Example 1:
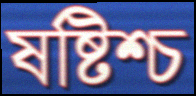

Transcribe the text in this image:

ষষ্টিশ্চ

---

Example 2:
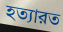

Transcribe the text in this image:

হত্যারত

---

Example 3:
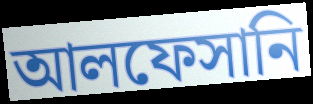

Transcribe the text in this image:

আলফেসানি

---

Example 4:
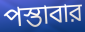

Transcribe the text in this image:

পস্তাবার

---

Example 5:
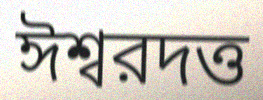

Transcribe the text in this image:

ঈশ্বরদত্ত